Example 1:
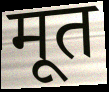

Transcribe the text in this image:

मूत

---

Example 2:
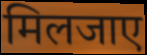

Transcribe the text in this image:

मिलजाए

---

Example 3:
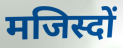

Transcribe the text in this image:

मजिस्दों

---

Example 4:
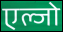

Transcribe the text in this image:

एल्जो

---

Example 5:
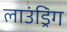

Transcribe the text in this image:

लाउंड्रिंग